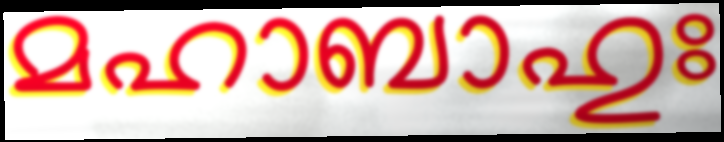
മഹാബാഹുഃ